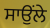
ਸਾਉਂਲੇ